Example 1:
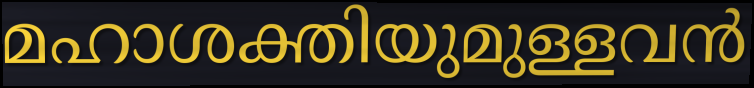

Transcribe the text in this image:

മഹാശക്തിയുമുള്ളവൻ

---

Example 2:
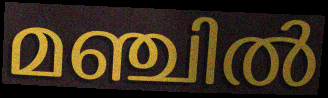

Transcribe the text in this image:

മഞ്ചിൽ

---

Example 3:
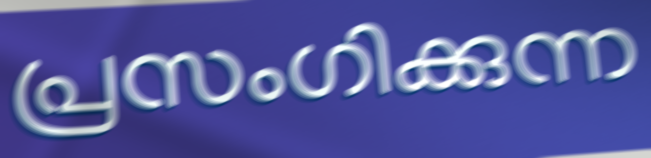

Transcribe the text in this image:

പ്രസംഗിക്കുന്ന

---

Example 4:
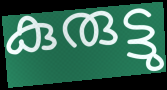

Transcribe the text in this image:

കുരുട്ടു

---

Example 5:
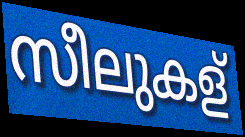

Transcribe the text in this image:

സീലുകള്